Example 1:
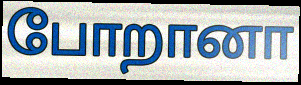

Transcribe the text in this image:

போறானா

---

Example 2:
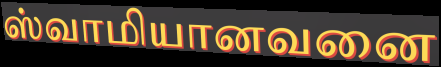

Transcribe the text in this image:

ஸ்வாமியானவனை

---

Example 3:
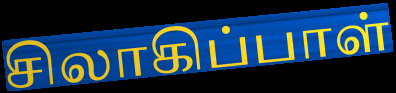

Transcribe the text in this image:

சிலாகிப்பாள்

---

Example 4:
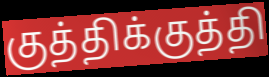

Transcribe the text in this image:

குத்திக்குத்தி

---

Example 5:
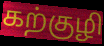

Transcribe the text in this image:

கற்குழி